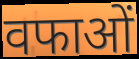
वफाओं